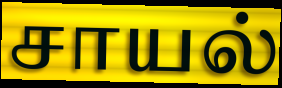
சாயல்